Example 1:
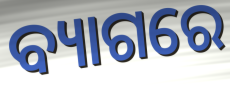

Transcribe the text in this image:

ବ୍ୟାଗରେ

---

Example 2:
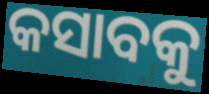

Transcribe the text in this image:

କସାବକୁ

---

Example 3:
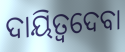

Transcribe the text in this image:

ଦାୟିତ୍ୱଦେବା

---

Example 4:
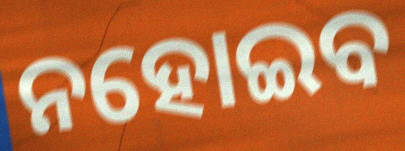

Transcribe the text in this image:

ନହୋଇବ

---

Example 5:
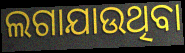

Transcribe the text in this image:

ଲଗାଯାଉଥିବା